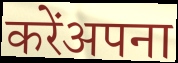
करेंअपना